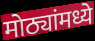
मोठ्यांमध्ये